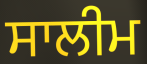
ਸਾਲੀਮ